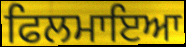
ਫਿਲਮਾਇਆ